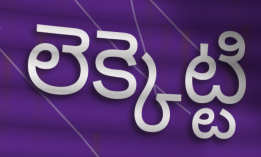
లెక్కెట్టి